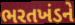
ભરતખંડને